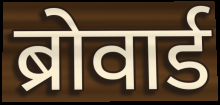
ब्रोवार्ड